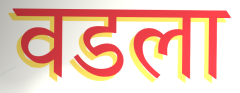
वडला